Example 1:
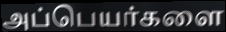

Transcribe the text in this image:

அப்பெயர்களை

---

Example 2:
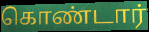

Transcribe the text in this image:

கொண்டார்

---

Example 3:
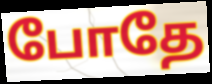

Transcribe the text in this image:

போதே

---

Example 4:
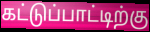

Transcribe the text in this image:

கட்டுப்பாட்டிற்கு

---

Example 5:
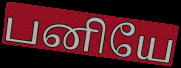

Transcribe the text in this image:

பனியே